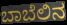
ಬಾಬೆಲಿನ